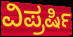
ವಿಪ್ರರ್ಷಿ